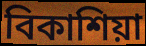
বিকাশিয়া